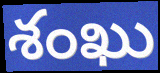
శంఖు